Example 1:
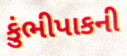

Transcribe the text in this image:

કુંભીપાકની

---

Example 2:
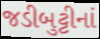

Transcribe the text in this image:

જડીબુટ્ટીનાં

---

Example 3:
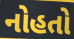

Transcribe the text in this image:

નોહતો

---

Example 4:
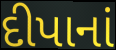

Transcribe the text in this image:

દીપાનાં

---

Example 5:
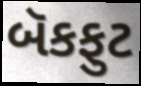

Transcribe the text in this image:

બૅકફુટ